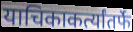
याचिकाकर्त्यांतर्फे